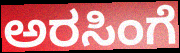
ಅರಸಿಂಗೆ